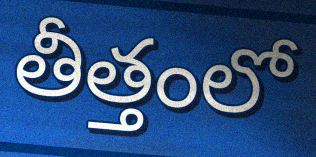
తీత్తంలో